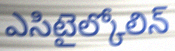
ఎసిటైల్కోలిన్